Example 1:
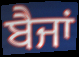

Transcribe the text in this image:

ਬੈਜਾਂ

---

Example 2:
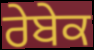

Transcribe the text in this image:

ਰੇਬੇਕ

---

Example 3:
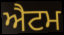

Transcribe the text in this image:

ਐਟਮ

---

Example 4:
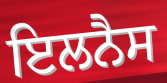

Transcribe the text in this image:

ਇਲਨੈਸ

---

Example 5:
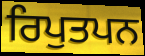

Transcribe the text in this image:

ਰਿਪੁਤਪਨ